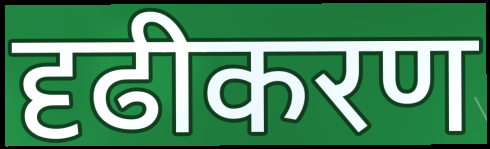
दृढीकरण